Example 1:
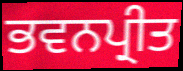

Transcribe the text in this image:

ਭਵਨਪ੍ਰੀਤ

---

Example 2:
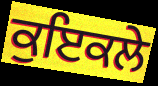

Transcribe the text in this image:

ਕੁਇਕਲੇ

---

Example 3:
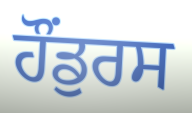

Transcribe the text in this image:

ਹੌਂਡੁਰਸ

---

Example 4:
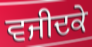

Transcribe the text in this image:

ਵਜੀਦਕੇ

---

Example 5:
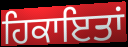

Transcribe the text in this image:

ਹਿਕਾਇਤਾਂ